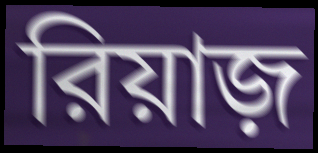
রিয়াজ়